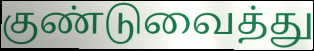
குண்டுவைத்து